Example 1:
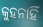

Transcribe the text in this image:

କୁହନାହିଁ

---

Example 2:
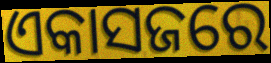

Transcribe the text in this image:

ଏକାସଜରେ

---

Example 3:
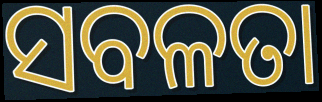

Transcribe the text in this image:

ସବଳତା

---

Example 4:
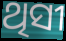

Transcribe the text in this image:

ଥିସୀ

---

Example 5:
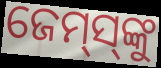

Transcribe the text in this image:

ଜେମ୍‌ସ୍‌ଙ୍କୁ